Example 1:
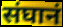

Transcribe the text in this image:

संघानं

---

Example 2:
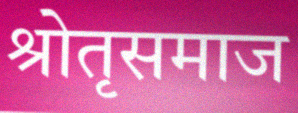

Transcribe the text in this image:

श्रोतृसमाज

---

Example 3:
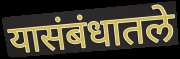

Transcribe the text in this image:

यासंबंधातले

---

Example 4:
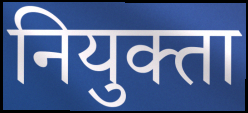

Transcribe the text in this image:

नियुक्ता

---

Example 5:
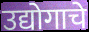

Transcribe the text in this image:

उद्योगाचे